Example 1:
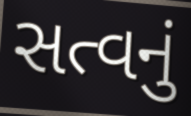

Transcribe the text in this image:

સત્વનું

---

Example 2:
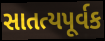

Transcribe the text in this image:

સાતત્યપૂર્વક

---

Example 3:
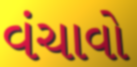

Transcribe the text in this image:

વંચાવો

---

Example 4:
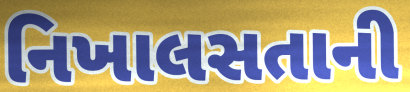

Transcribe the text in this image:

નિખાલસતાની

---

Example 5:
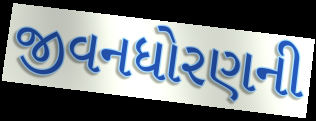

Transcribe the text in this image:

જીવનધોરણની